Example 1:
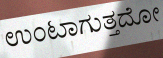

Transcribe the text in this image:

ಉಂಟಾಗುತ್ತದೋ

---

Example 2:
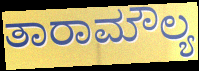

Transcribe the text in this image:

ತಾರಾಮೌಲ್ಯ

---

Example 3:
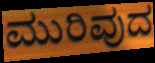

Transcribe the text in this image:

ಮುರಿವುದ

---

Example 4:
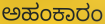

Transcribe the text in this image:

ಅಹಂಕಾರಂ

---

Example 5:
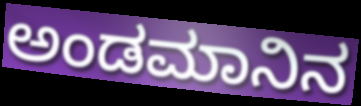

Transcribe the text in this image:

ಅಂಡಮಾನಿನ